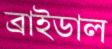
ব্রাইডাল